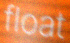
float